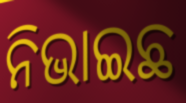
ନିଭାଇଛ